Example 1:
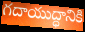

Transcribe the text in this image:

గదాయుద్ధానికి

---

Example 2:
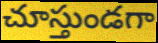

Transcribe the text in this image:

చూస్తుండగా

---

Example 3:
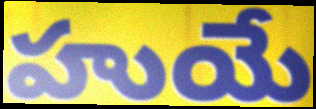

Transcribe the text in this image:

హుయే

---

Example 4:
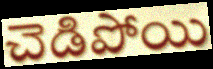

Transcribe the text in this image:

చెడిపోయి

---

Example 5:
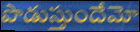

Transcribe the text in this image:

పొడుస్తుందేమో